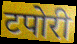
टपोरी